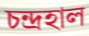
চন্দ্ৰহাল